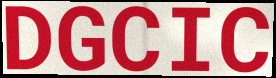
DGCIC